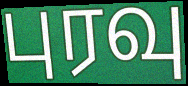
புரவு